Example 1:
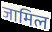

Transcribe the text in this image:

जामिल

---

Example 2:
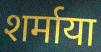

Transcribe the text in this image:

शर्माया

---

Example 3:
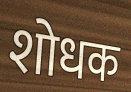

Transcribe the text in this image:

शोधक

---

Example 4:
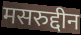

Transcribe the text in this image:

मसरुद्दीन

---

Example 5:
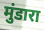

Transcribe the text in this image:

मुंडारा